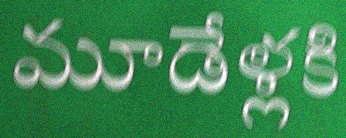
మూడేళ్లకి